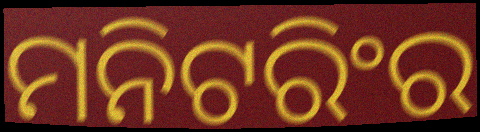
ମନିଟରିଂର